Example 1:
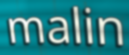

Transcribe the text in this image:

malin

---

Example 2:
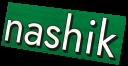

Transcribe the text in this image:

nashik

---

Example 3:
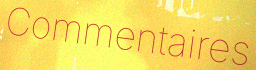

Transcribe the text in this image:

Commentaires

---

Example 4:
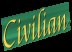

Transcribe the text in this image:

Civilian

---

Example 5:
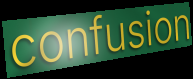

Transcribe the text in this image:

confusion